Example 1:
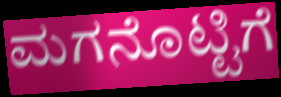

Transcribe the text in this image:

ಮಗನೊಟ್ಟಿಗೆ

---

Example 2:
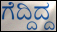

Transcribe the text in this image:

ಗೆದ್ದಿದ್ದ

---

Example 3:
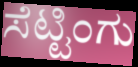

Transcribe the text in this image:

ಸೆಟ್ಟಿಂಗು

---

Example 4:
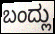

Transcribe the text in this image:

ಬಂದ್ಲು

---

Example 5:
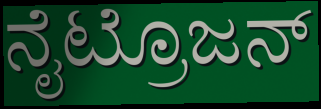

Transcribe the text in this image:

ನೈಟ್ರೊಜನ್